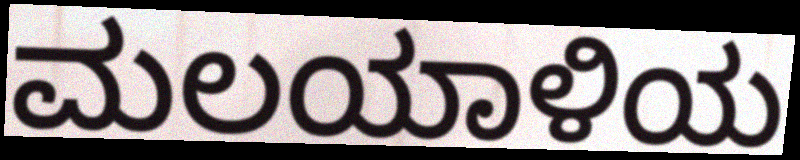
ಮಲಯಾಳಿಯ